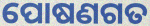
ପୋଷଣଗତ